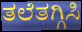
ತಲೆತಗ್ಗಿಸಿ